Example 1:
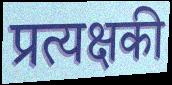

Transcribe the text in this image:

प्रत्यक्षकी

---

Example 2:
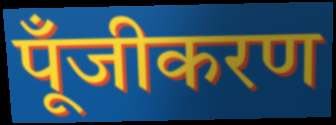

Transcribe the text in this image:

पूँजीकरण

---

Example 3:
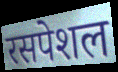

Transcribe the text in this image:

रसपेशल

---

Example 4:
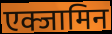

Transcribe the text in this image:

एक्जामिन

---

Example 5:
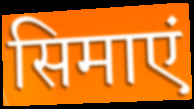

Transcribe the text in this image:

सिमाएं